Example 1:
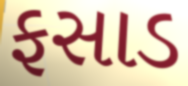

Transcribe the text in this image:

ફસાડ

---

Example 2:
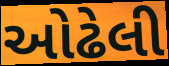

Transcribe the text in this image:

ઓઢેલી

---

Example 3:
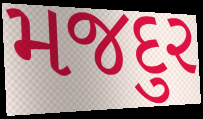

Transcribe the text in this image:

મજદુર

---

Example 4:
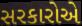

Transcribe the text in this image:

સરકારોએ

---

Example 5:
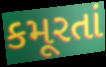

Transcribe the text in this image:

કમૂરતાં